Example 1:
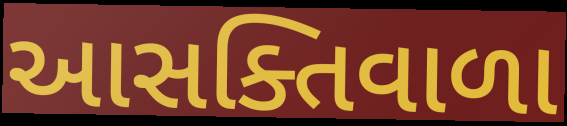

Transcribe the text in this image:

આસક્તિવાળા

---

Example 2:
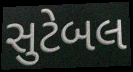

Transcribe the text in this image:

સુટેબલ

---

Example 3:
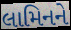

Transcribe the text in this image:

લામિનને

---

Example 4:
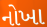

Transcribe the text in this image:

નોખા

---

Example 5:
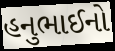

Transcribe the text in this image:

હનુભાઈનો